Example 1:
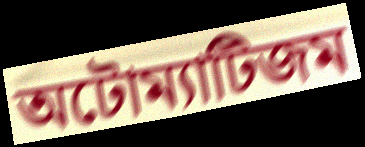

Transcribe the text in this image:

অটোম্যাটিজম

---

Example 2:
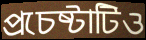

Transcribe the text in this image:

প্রচেষ্টাটিও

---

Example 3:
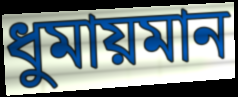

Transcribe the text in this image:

ধুমায়মান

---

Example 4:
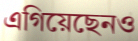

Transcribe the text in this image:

এগিয়েছেনও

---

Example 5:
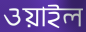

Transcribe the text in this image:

ওয়াইল